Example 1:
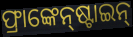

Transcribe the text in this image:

ଫ୍ରାଙ୍କେନ୍‌ଷ୍ଟାଇନ୍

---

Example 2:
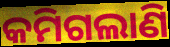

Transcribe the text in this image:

କମିଗଲାଣି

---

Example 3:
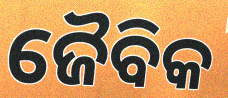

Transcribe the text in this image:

ଜୈବିକ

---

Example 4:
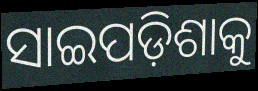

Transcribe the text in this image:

ସାଇପଡ଼ିଶାକୁ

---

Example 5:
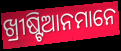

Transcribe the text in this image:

ଖ୍ରୀଷ୍ଟିଆନମାନେ